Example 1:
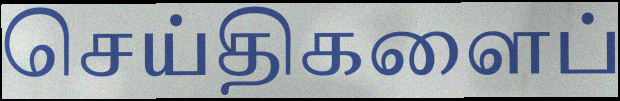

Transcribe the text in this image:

செய்திகளைப்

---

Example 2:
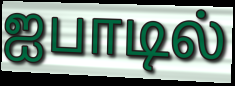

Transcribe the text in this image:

ஐபாடில்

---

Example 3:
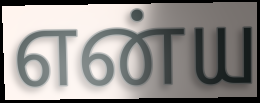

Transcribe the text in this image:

என்ய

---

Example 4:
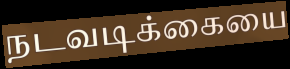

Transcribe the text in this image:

நடவடிக்கையை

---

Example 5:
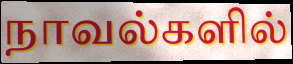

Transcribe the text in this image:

நாவல்களில்